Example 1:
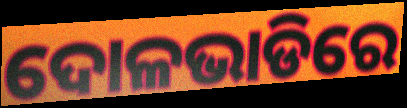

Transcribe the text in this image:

ଦୋଳଭାଡିରେ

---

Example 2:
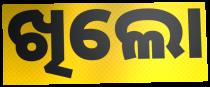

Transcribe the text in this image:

ଖିଲୋ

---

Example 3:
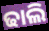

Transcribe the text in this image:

ଢାଲି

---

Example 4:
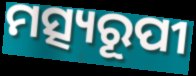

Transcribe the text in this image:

ମତ୍ସ୍ୟରୂପୀ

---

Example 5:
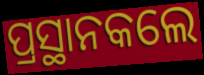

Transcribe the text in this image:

ପ୍ରସ୍ଥାନକଲେ